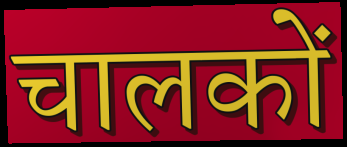
चालकों